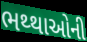
ભથ્થાઓની